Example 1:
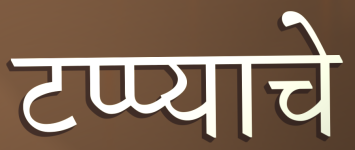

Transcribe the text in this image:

टप्प्याचे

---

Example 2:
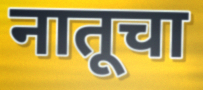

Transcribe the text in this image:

नातूचा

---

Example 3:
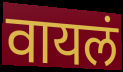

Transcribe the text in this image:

वायलं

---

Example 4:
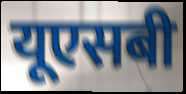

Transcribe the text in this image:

यूएसबी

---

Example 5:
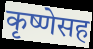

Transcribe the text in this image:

कृष्णेसह